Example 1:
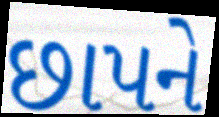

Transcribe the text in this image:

છાપને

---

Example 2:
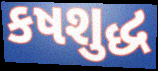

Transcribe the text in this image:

કષશુદ્ધ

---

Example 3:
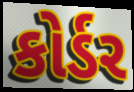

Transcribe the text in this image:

કોર્ડર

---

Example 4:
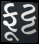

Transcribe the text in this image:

ફૂટ્ટ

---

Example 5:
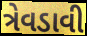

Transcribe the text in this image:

ત્રેવડાવી